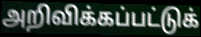
அறிவிக்கப்பட்டுக்